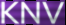
KNV